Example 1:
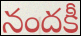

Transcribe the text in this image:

నందకీ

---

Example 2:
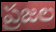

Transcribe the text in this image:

ప్రజల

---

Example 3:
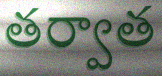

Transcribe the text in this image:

తర్వాత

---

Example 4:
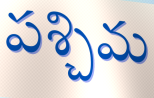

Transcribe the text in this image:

పశ్చిమ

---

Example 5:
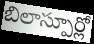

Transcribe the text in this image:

బిలాస్పూర్లో